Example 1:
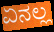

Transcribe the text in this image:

ಏನಲ್ಲ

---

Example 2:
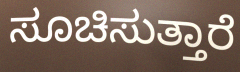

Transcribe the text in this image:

ಸೂಚಿಸುತ್ತಾರೆ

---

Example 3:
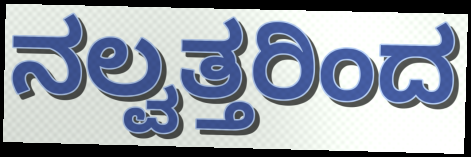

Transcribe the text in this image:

ನಲ್ವತ್ತರಿಂದ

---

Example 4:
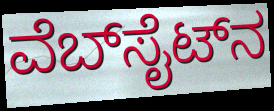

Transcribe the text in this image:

ವೆಬ್‍ಸೈಟ್‍ನ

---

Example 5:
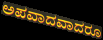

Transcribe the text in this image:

ಅಪವಾದವಾದರೂ